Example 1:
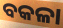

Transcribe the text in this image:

ବକଳା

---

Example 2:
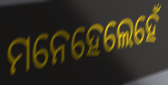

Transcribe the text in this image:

ମନେହେଲେହେଁ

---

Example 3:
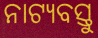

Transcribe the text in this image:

ନାଟ୍ୟବସ୍ତୁ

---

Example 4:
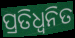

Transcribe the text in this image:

ପ୍ରତିଧ୍ଵନିତ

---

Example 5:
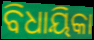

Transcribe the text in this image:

ବିଧାୟିକା